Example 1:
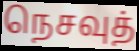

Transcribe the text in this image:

நெசவுத்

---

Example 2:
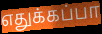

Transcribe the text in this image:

எதுக்கப்பா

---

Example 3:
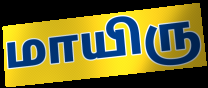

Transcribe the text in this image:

மாயிரு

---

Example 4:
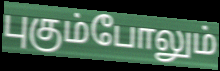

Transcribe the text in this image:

புகும்போலும்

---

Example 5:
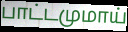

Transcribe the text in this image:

பாட்டமுமாய்